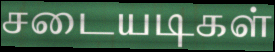
சடையடிகள்